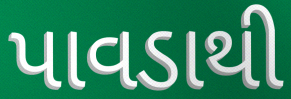
પાવડાથી